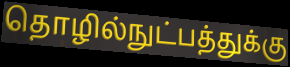
தொழில்நுட்பத்துக்கு